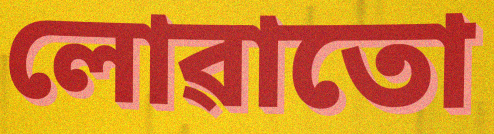
লোৱাতো